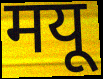
मयू